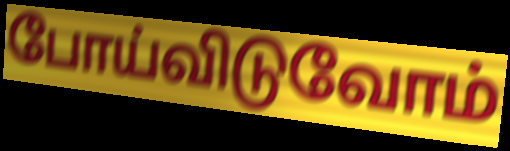
போய்விடுவோம்